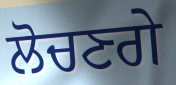
ਲੋਚਣਗੇ